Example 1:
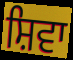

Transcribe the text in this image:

ਸ਼ਿਵਾ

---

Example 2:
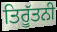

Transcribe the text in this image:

ਤਿਰੂੱਤਨੀ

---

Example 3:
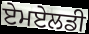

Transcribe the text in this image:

ਏਮਏਲਡੀ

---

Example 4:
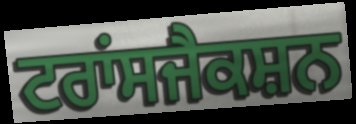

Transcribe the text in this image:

ਟਰਾਂਸਜੈਕਸ਼ਨ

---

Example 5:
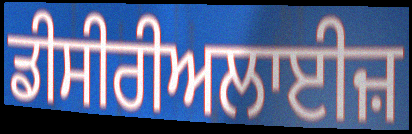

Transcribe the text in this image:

ਡੀਸੀਰੀਅਲਾਈਜ਼